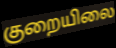
குறையிலை